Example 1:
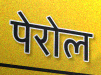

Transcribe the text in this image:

पेरोल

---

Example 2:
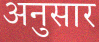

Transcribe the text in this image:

अनुसार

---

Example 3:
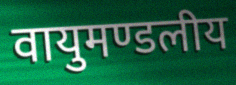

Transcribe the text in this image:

वायुमण्डलीय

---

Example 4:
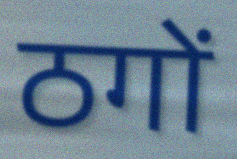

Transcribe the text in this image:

ठगों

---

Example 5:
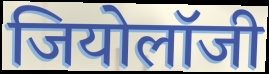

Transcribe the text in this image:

जियोलॉजी